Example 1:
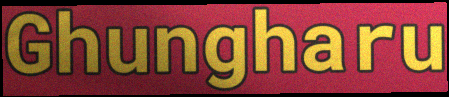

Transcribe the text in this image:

Ghungharu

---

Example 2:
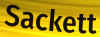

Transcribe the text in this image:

Sackett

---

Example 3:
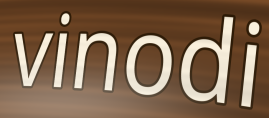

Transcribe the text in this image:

vinodi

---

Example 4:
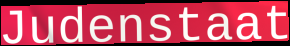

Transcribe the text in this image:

Judenstaat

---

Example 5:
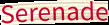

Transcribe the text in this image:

Serenade